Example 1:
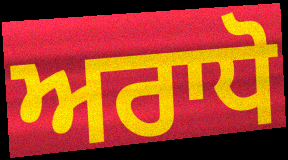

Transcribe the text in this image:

ਅਰਾਧੋ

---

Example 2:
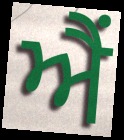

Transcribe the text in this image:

ਐਂ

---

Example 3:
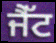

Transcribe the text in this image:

ਜੈੱਟ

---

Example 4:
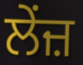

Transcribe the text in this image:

ਲੇਂਜ਼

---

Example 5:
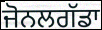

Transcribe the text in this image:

ਜੋਨਲਗੱਡਾ